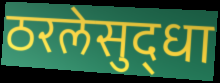
ठरलेसुद्धा